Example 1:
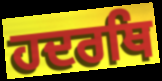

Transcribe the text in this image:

ਹਦਰਥਿ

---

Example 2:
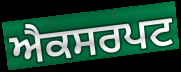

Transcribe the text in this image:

ਐਕਸਰਪਟ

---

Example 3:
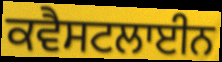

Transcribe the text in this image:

ਕਵੈਸਟਲਾਈਨ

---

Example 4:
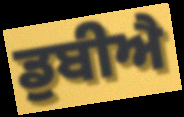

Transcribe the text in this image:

ਡੁਬੀਐ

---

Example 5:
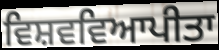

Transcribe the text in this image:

ਵਿਸ਼ਵਵਿਆਪੀਤਾ